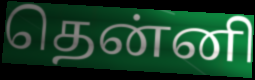
தென்னி